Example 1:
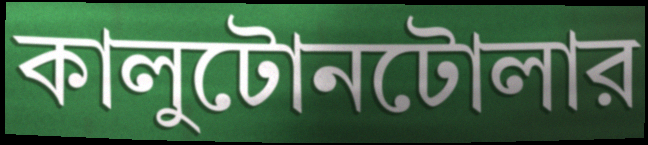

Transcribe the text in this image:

কালুটোনটোলার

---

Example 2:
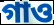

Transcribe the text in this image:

গাও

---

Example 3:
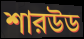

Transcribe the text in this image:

শারউড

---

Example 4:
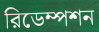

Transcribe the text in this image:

রিডেম্পশন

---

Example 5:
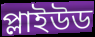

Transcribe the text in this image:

প্লাইউড